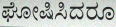
ಘೋಷಿಸಿದರೂ